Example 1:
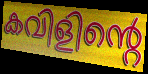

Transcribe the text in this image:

കവിളിന്റെ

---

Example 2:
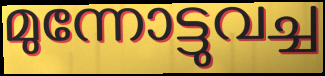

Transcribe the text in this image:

മുന്നോട്ടുവച്ച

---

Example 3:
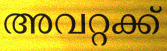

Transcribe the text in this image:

അവറ്റക്ക്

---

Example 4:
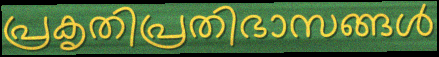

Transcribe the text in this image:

പ്രകൃതിപ്രതിഭാസങ്ങൾ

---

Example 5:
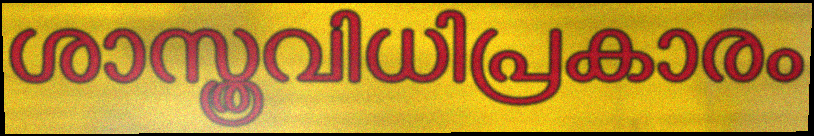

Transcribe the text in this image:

ശാസ്ത്രവിധിപ്രകാരം